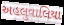
અહલુવાલિયા